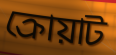
ক্রোয়াট